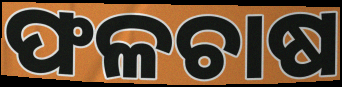
ଫଳଚାଷ